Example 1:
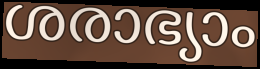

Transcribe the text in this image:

ശരാഭ്യാം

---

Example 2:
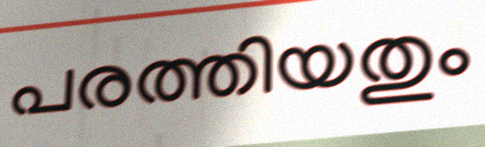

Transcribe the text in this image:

പരത്തിയതും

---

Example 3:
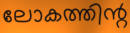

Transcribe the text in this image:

ലോകത്തിന്റ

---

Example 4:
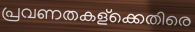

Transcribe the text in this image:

പ്രവണതകള്ക്കെതിരെ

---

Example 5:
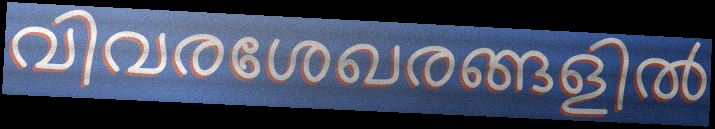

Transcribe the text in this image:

വിവരശേഖരങ്ങളിൽ